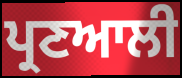
ਪ੍ਰਣਆਲੀ